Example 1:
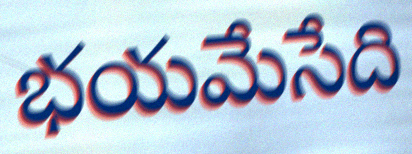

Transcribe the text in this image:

భయమేసేది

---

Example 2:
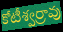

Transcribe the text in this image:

కోటీశ్వర్రావు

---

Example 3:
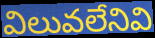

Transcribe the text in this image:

విలువలేనివి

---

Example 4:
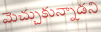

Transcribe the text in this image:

మెచ్చుకున్నాడని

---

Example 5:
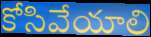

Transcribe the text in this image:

కోసివేయాలి